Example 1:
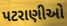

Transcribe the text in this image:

પટરાણીઓ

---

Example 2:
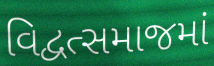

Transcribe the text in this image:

વિદ્વત્સમાજમાં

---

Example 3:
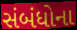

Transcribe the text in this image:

સંબંધોના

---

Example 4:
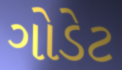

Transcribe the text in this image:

ગોડેટ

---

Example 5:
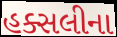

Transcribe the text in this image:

હક્સલીના